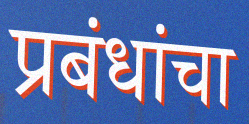
प्रबंधांचा